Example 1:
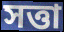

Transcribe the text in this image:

সত্তা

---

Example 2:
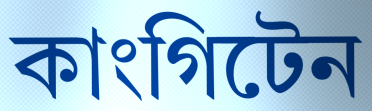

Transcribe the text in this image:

কাংগিটেন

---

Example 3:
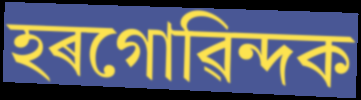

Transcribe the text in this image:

হৰগোৱিন্দক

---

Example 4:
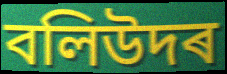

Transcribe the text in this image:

বলিউদৰ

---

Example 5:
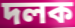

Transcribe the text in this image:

দলক